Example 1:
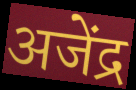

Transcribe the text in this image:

अजेंद्र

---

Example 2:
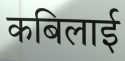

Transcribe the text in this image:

कबिलाई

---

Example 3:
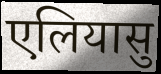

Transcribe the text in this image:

एलियासु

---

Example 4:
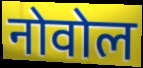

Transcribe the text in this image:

नोवोल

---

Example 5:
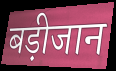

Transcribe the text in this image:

बड़ीजान